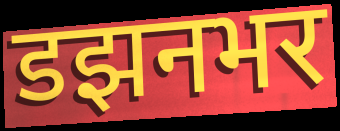
डझनभर